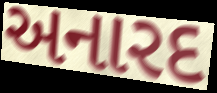
અનારદ